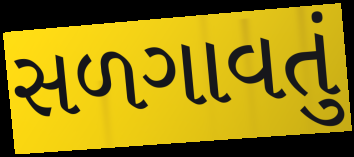
સળગાવતું